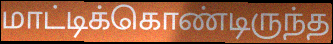
மாட்டிக்கொண்டிருந்த